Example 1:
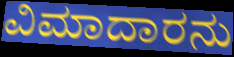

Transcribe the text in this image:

ವಿಮಾದಾರನು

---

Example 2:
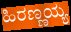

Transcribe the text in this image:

ಹಿರಣ್ಣಯ್ಯ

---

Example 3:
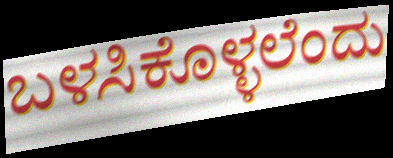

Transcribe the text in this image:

ಬಳಸಿಕೊಳ್ಳಲೆಂದು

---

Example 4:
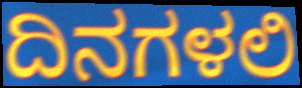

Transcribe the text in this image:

ದಿನಗಳಲಿ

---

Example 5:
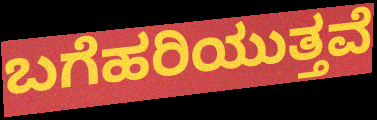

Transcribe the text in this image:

ಬಗೆಹರಿಯುತ್ತವೆ